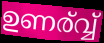
ഉണര്വ്വ്